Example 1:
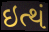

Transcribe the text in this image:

ઇત્થં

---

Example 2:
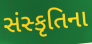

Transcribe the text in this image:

સંસ્કૃતિના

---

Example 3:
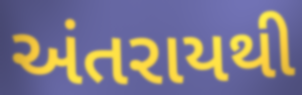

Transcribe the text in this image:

અંતરાયથી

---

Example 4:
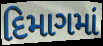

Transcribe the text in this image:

દિમાગમાં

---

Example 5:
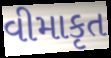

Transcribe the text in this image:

વીમાકૃત